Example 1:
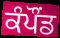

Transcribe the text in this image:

ਕੰਪੌਂਡ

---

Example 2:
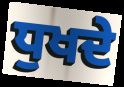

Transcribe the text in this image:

ਧੁਖਦੇ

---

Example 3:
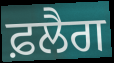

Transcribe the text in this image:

ਫ਼ਲੈਗ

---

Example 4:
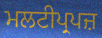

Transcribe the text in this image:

ਮਲਟੀਪ੍ਰਪਜ਼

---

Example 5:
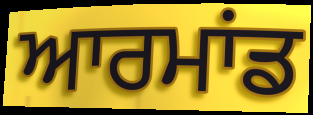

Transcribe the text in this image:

ਆਰਮਾਂਡ